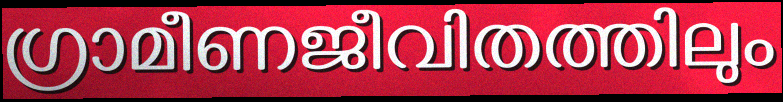
ഗ്രാമീണജീവിതത്തിലും